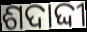
ଶଦାଦ୍ଦୀ